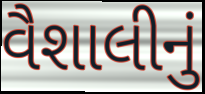
વૈશાલીનું